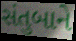
સંતુબાને